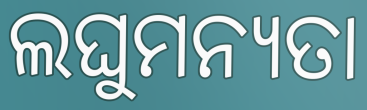
ଲଘୁମନ୍ୟତା